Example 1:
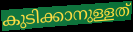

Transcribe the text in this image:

കുടിക്കാനുള്ളത്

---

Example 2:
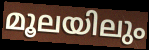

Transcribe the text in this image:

മൂലയിലും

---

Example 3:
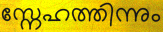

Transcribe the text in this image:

സ്നേഹത്തിന്നും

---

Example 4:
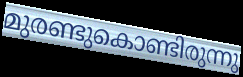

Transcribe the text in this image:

മുരണ്ടുകൊണ്ടിരുന്നു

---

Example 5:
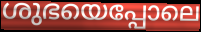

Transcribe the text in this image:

ശുഭയെപ്പോലെ